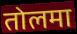
तोलमा